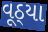
વૂઠ્યા